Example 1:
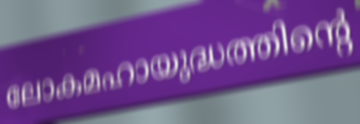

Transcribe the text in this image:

ലോകമഹായുദ്ധത്തിന്റെ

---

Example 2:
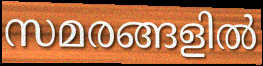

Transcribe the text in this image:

സമരങ്ങളിൽ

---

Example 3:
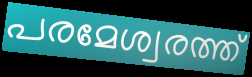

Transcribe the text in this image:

പരമേശ്വരത്ത്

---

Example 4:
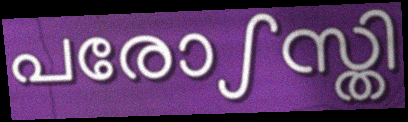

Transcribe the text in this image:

പരോഽസ്തി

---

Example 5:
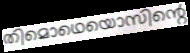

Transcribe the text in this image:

തിമൊഥെയൊസിന്റെ